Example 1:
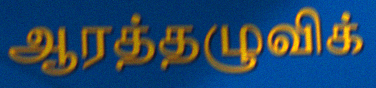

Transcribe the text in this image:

ஆரத்தழுவிக்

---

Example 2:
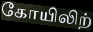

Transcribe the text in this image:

கோயிலிற்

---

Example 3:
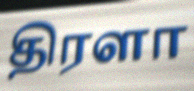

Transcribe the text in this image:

திரளா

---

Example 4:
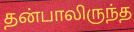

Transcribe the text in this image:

தன்பாலிருந்த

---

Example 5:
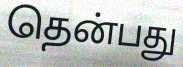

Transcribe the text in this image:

தென்பது